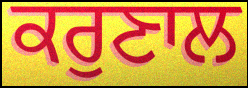
ਕਰੁਣਾਲ